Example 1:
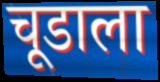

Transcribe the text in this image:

चूडाला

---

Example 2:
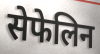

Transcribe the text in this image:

सेफेलिन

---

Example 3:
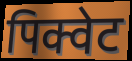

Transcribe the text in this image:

पिक्वेट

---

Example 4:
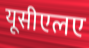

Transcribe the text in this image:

यूसीएलए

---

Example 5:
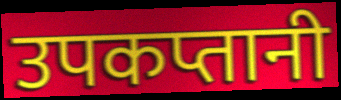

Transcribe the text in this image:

उपकप्तानी